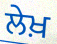
ਲੇਖ਼